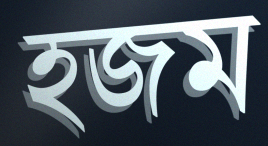
হজম